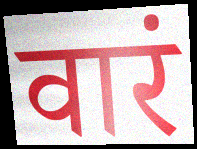
वारं